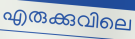
എരുക്കുവിലെ